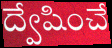
ద్వేషించే